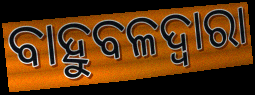
ବାହୁବଳଦ୍ୱାରା